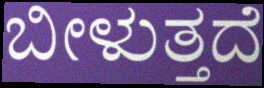
ಬೀಳುತ್ತದೆ